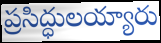
ప్రసిద్ధులయ్యారు